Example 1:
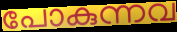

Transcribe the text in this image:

പോകുന്നവ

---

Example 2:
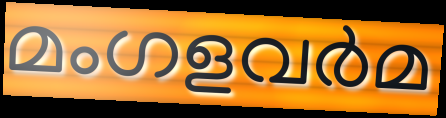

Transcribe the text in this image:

മംഗളവർമ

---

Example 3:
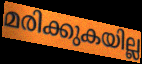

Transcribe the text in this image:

മരിക്കുകയില്ല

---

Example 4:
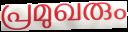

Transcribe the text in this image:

പ്രമുഖരും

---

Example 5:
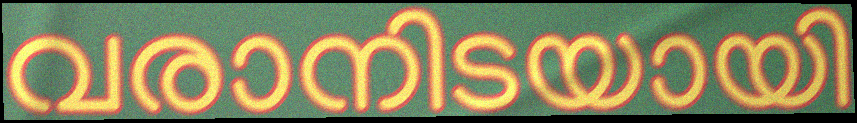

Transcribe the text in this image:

വരാനിടയായി